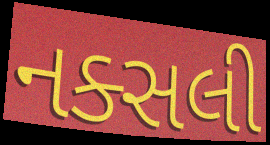
નક્સલી